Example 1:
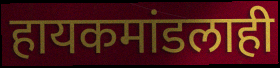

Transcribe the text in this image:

हायकमांडलाही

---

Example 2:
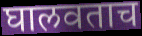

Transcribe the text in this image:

घालवताच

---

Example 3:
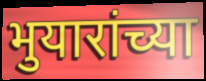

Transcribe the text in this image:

भुयारांच्या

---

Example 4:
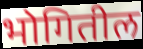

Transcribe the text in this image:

भोगितील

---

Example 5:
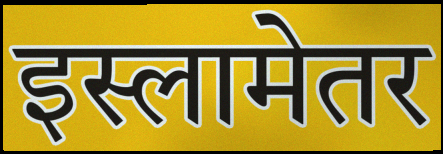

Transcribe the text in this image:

इस्लामेतर